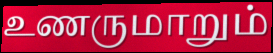
உணருமாறும்